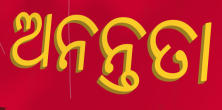
ଅନନ୍ତତା